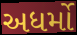
અધર્મો